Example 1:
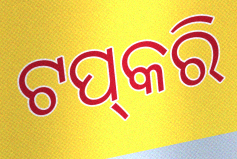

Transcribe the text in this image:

ଟପ୍‌କରି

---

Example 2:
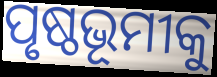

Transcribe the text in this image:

ପୃଷ୍ଠଭୂମୀକୁ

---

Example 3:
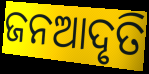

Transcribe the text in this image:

ଜନଆଦୃତି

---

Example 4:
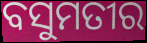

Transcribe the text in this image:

ବସୁମତୀର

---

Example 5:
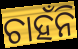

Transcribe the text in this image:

ଚାହଁନି